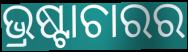
ଭ୍ରଷ୍ଟାଚାରର